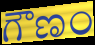
గౌణం